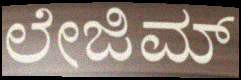
ಲೇಜಿಮ್